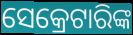
ସେକ୍ରେଟାରିଙ୍କ